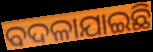
ବଦଳାଯାଇଛି